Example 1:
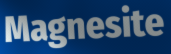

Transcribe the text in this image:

Magnesite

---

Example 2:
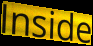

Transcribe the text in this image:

Inside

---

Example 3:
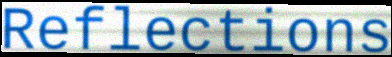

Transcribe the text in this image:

Reflections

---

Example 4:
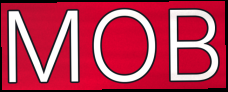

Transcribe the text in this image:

MOB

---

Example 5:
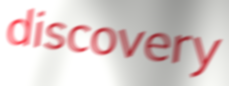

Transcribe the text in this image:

discovery